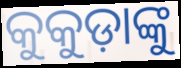
କୁକୁଡ଼ାଙ୍କୁ